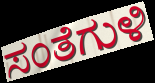
ಸಂತೆಗುಳಿ